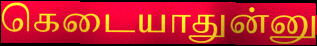
கெடையாதுன்னு